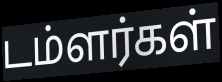
டம்ளர்கள்